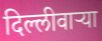
दिल्लीवाऱ्या